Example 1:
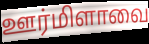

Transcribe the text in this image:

ஊர்மிளாவை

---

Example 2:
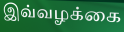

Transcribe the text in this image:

இவ்வழக்கை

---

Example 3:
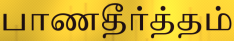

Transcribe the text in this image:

பாணதீர்த்தம்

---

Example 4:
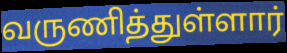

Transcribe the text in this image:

வருணித்துள்ளார்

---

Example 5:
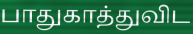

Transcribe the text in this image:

பாதுகாத்துவிட